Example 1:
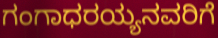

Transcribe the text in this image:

ಗಂಗಾಧರಯ್ಯನವರಿಗೆ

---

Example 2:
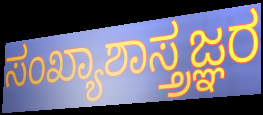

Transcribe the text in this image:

ಸಂಖ್ಯಾಶಾಸ್ತ್ರಜ್ಞರ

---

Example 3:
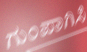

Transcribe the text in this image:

ಗುಂಪಾಗಿಸಿ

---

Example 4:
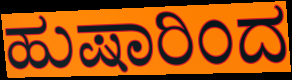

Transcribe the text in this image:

ಹುಷಾರಿಂದ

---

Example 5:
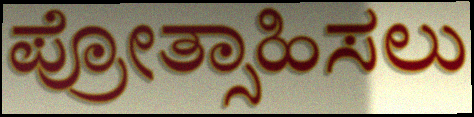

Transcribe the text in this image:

ಪ್ರೋತ್ಸಾಹಿಸಲು